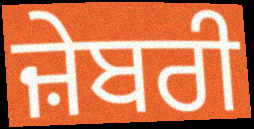
ਜ਼ੇਬਰੀ